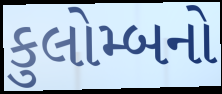
કુલોમ્બનો